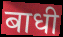
बाधी